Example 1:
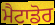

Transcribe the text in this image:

ਮੈਟਾਡੋਰ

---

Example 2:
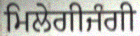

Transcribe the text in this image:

ਮਿਲੇਗੀਜੰਗੀ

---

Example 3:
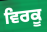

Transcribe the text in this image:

ਵਿਰਕੂ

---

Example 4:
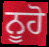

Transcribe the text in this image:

ਨੂਹੋ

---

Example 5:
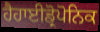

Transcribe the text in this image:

ਹੈਹਾਈਡ੍ਰੋਪੋਨਿਕ